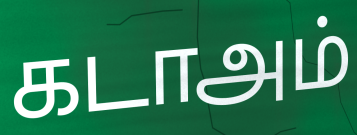
கடாஅம்